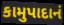
કામુપાદાનં